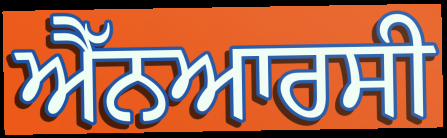
ਐੱਨਆਰਸੀ